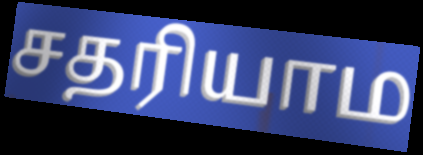
சதரியாம